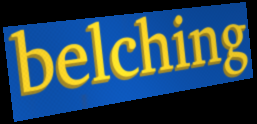
belching